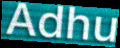
Adhu